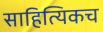
साहित्यिकच